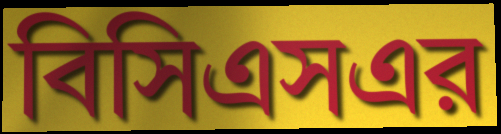
বিসিএসএর